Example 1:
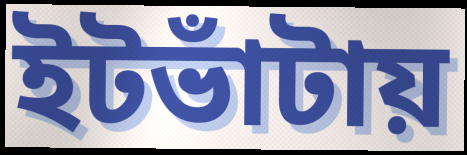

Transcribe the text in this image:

ইটভাঁটায়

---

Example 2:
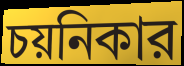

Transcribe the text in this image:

চয়নিকার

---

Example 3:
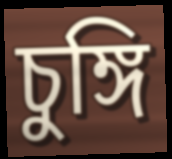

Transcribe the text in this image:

চুঙ্গি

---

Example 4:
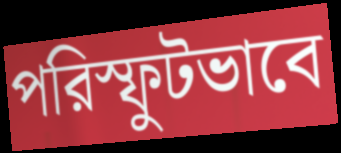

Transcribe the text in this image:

পরিস্ফুটভাবে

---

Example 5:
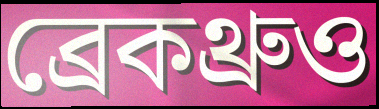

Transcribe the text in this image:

ব্রেকথ্রুও